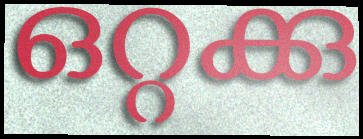
ഒറ്റക്കു